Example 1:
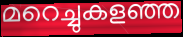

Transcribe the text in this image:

മറെച്ചുകളഞ്ഞ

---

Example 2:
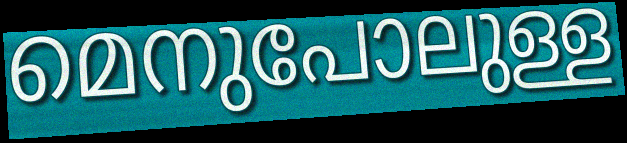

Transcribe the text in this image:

മെനുപോലുള്ള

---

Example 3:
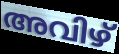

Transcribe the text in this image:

അവിഴ്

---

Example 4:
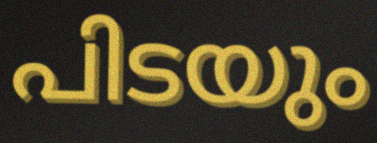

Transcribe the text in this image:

പിടയും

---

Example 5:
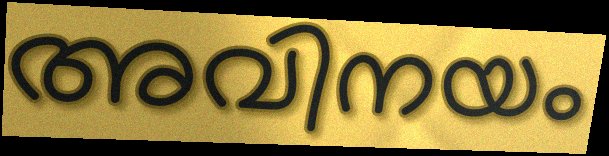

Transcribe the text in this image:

അവിനയം